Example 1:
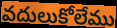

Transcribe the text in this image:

వదులుకోలేము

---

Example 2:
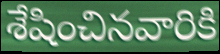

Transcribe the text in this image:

శేషించినవారికి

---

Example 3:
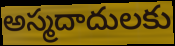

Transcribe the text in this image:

అస్మదాదులకు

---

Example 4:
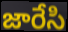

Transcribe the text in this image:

జారేసి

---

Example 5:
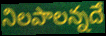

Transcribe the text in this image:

నిలపాలన్నదే